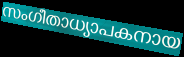
സംഗീതാധ്യാപകനായ